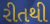
રીતથી